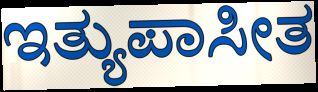
ಇತ್ಯುಪಾಸೀತ